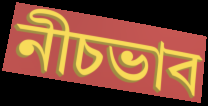
নীচভাব